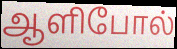
ஆளிபோல்